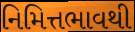
નિમિત્તભાવથી